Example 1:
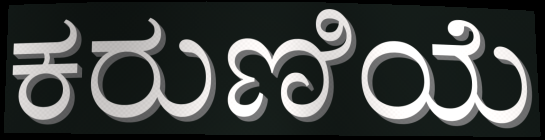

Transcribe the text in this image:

ಕರುಣಿಯೆ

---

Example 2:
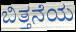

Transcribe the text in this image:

ಬಿತ್ತನೆಯ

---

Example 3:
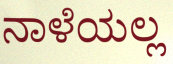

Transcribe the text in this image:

ನಾಳೆಯಲ್ಲ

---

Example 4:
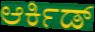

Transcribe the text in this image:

ಆರ್ಕಿಡ್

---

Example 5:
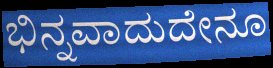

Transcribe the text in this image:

ಭಿನ್ನವಾದುದೇನೂ